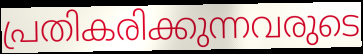
പ്രതികരിക്കുന്നവരുടെ